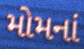
મોમનાં